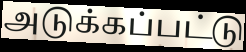
அடுக்கப்பட்டு